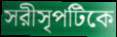
সরীসৃপটিকে